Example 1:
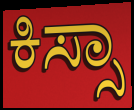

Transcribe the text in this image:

ಕಿಸ್ಸಾ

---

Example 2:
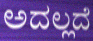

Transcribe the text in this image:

ಅದಲ್ಲದೆ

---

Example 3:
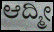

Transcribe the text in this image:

ಆದ್ಮೀ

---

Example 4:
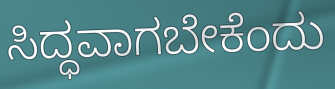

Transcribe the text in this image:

ಸಿದ್ಧವಾಗಬೇಕೆಂದು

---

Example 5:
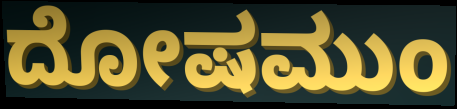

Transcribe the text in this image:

ದೋಷಮುಂ